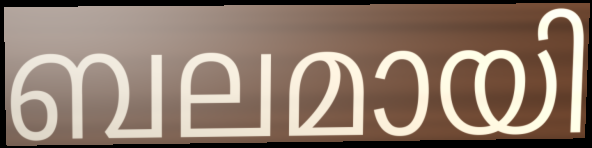
ബലമായി